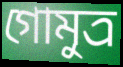
গোমুত্ৰ